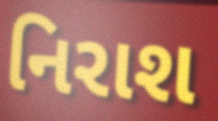
નિરાશ